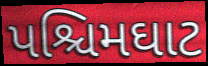
પશ્ચિમઘાટ